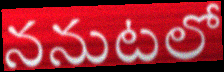
ననుటలో